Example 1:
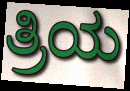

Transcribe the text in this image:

ತ್ರಿಯ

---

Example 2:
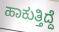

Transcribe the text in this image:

ಹಾಕುತ್ತಿದ್ದೆ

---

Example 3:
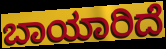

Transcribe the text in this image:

ಬಾಯಾರಿದೆ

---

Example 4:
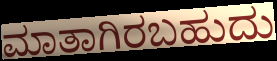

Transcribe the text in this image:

ಮಾತಾಗಿರಬಹುದು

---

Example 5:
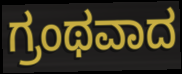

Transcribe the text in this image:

ಗ್ರಂಥವಾದ